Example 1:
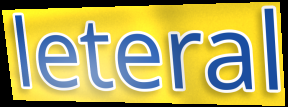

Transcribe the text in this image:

leteral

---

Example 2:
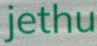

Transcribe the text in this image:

jethu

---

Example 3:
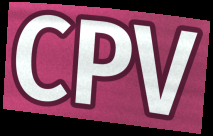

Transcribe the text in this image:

CPV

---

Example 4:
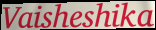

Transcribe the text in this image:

Vaisheshika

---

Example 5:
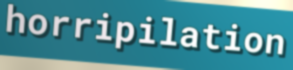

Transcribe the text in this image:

horripilation